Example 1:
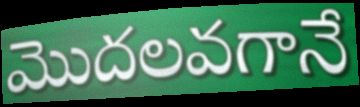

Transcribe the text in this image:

మొదలవగానే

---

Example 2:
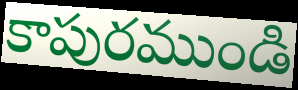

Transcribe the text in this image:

కాపురముండి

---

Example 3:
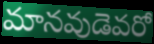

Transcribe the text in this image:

మానవుడెవరో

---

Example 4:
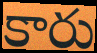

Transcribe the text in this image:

కారు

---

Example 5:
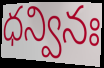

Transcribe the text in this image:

ధన్వినః